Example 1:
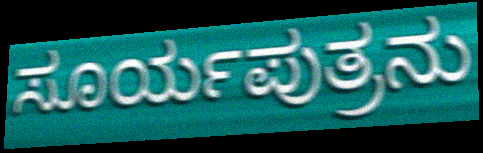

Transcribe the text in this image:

ಸೂರ್ಯಪುತ್ರನು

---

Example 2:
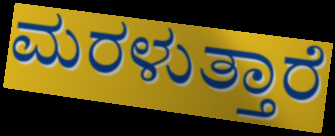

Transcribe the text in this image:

ಮರಳುತ್ತಾರೆ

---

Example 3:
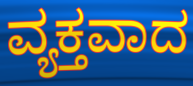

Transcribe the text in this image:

ವ್ಯಕ್ತವಾದ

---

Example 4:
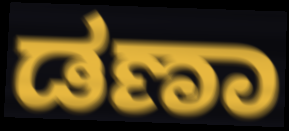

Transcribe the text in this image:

ಡಣಾ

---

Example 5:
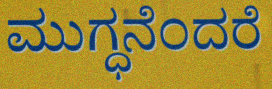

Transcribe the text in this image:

ಮುಗ್ಧನೆಂದರೆ